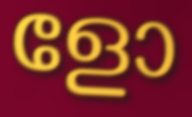
ളോ